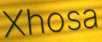
Xhosa